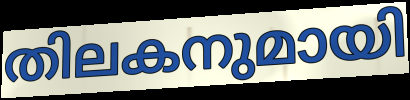
തിലകനുമായി